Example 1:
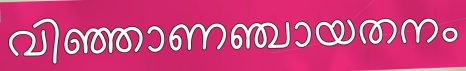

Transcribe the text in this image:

വിഞ്ഞാണഞ്ചായതനം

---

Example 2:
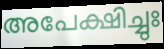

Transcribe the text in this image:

അപേക്ഷിച്ചുഃ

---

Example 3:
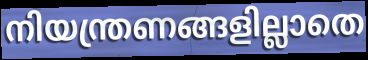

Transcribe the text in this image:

നിയന്ത്രണങ്ങളില്ലാതെ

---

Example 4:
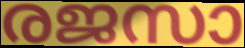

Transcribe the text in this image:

രജസാ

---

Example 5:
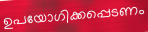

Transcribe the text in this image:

ഉപയോഗിക്കപ്പെടണം